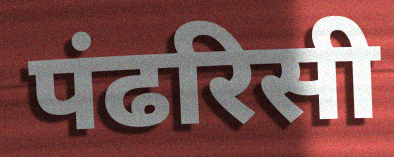
पंढरिसी